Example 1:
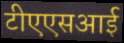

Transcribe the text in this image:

टीएएसआई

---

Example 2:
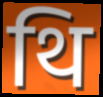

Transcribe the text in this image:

थि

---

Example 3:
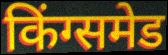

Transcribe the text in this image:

किंग्समेड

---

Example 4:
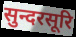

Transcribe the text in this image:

सुन्दरसूरि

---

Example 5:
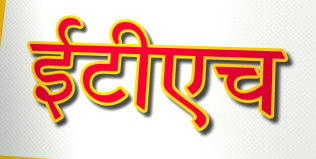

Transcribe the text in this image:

ईटीएच